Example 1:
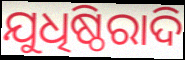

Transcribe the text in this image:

ଯୁଧିଷ୍ଠିରାଦି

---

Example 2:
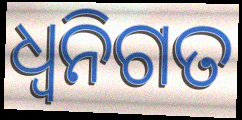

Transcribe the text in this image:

ଧ୍ଵନିଗତ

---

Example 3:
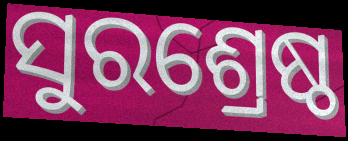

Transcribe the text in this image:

ସୁରଶ୍ରେଷ୍ଠ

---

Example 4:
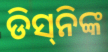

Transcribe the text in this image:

ଡିସ୍‌ନିଙ୍କ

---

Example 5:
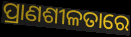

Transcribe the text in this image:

ପ୍ରାଣଶୀଳତାରେ